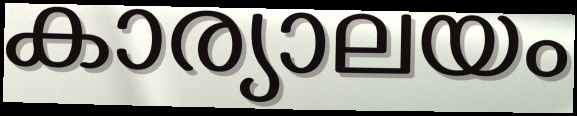
കാര്യാലയം